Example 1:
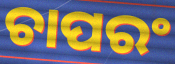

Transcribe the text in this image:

ଚାପରଂ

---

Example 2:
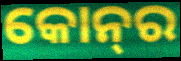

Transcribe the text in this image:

କୋନ୍‌ର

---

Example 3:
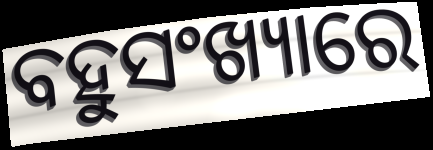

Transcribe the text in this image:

ବହୁସଂଖ୍ୟାରେ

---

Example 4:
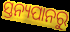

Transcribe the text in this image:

ସ୍ତନ୍ୟପାନରୁ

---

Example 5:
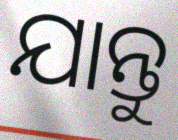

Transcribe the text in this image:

ଯାନ୍ତୁ